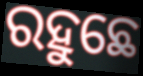
ରହୁଛେ